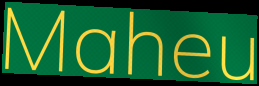
Maheu